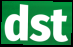
dst